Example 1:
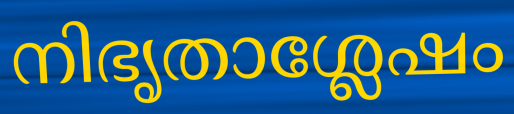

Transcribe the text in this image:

നിഭൃതാശ്ലേഷം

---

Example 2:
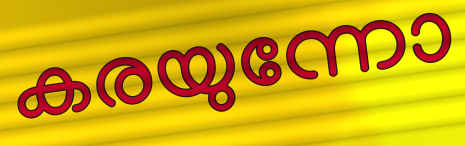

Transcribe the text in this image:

കരയുന്നോ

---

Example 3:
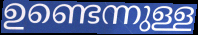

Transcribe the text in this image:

ഉണ്ടെന്നുള്ള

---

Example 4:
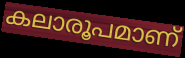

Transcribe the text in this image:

കലാരൂപമാണ്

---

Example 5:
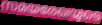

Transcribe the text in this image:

സമയരേഖയുടെ